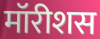
मॉरीशस